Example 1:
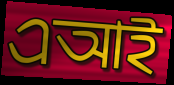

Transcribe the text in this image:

এআই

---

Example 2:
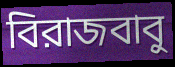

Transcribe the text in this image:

বিরাজবাবু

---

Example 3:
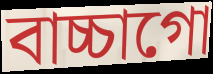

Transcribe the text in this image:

বাচ্চাগো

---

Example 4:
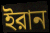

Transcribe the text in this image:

ইরান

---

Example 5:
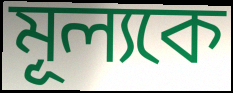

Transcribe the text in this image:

মূল্যকে